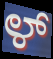
ಳ್